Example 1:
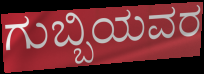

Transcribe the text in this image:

ಗುಬ್ಬಿಯವರ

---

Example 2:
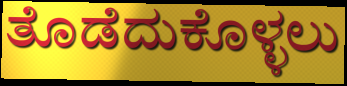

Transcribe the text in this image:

ತೊಡೆದುಕೊಳ್ಳಲು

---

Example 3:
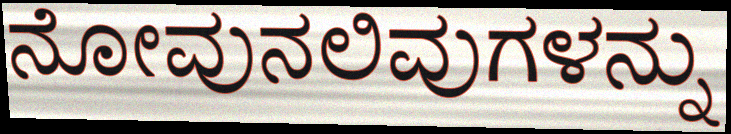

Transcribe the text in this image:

ನೋವುನಲಿವುಗಳನ್ನು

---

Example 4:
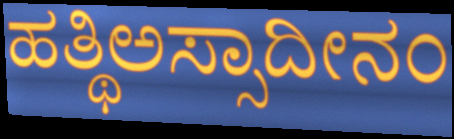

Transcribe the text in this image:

ಹತ್ಥಿಅಸ್ಸಾದೀನಂ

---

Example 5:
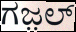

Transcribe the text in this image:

ಗಜ಼ಲ್